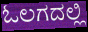
ಓಲಗದಲ್ಲಿ